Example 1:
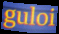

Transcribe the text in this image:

guloi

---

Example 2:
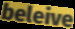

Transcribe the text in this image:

beleive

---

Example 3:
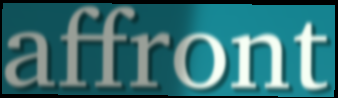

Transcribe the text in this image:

affront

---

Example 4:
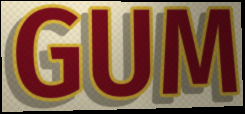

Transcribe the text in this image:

GUM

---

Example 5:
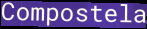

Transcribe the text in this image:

Compostela